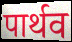
पार्थव